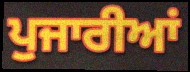
ਪੁਜਾਰੀਆਂ